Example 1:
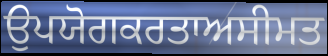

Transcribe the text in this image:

ਉਪਯੋਗਕਰਤਾਅਸੀਮਤ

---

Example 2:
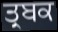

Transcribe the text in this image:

ਤ੍ਰਬਕ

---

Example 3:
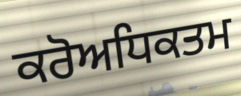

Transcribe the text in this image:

ਕਰੋਅਧਿਕਤਮ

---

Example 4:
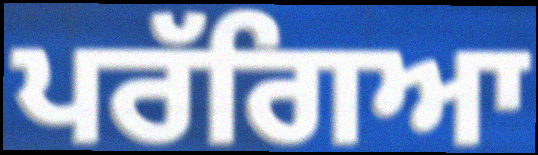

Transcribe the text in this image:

ਪਰੱਗਿਆ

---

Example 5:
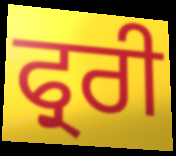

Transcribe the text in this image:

ਫ੍ਰਰੀ